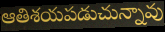
ఆతిశయపడుచున్నావు